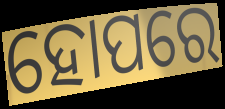
ହୋପରେ